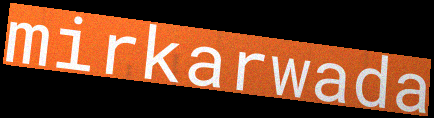
mirkarwada